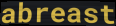
abreast